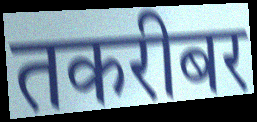
तकरीबर